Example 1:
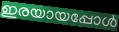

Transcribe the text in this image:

ഇരയായപ്പോൾ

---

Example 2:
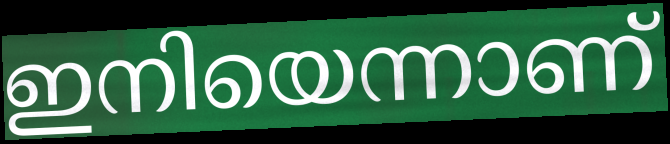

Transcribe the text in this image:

ഇനിയെന്നാണ്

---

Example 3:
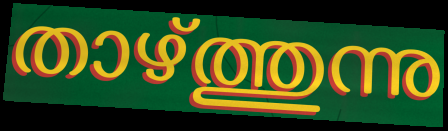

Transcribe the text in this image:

താഴ്ത്തുന്നു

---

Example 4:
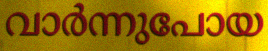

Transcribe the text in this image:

വാർന്നുപോയ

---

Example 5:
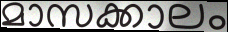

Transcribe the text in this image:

മാസക്കാലം